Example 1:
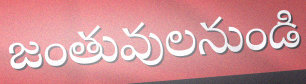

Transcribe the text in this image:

జంతువులనుండి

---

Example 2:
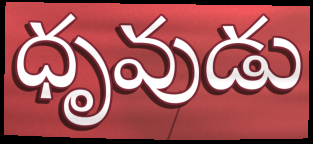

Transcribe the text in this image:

ధృవుడు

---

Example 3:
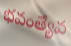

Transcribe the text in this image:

భవంత్యేవ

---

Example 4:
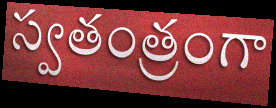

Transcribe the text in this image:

స్వతంత్రంగా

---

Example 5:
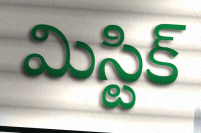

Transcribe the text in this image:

మిస్టిక్